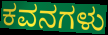
ಕವನಗಳು